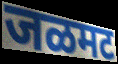
जळमट